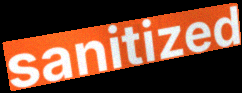
sanitized